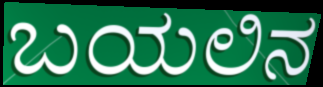
ಬಯಲಿನ